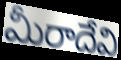
మీరాదేవి